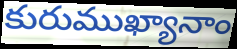
కురుముఖ్యానాం